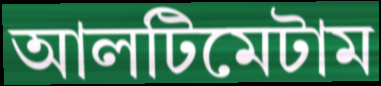
আলটিমেটাম